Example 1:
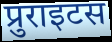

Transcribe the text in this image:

प्रुराइटस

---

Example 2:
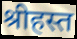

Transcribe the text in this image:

श्रीहस्त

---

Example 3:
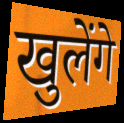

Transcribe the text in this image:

खुलेंगे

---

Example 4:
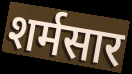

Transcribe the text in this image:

शर्मसार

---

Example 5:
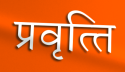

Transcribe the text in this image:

प्रवृत्‍ति